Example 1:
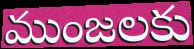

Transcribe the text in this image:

ముంజలకు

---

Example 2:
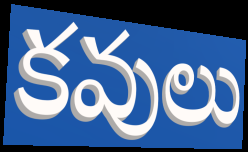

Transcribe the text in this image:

కవులు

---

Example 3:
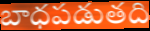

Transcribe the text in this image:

బాధపడుతది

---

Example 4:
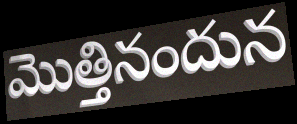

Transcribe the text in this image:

మొత్తినందున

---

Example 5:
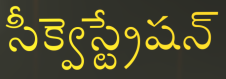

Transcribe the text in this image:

సీక్వెస్ట్రేషన్